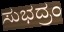
ಸುಭದ್ರಂ